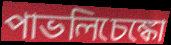
পাভলিচেঙ্কো